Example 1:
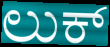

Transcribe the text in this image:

ಲುಕ್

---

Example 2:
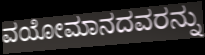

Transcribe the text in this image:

ವಯೋಮಾನದವರನ್ನು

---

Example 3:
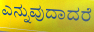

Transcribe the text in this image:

ಎನ್ನುವುದಾದರೆ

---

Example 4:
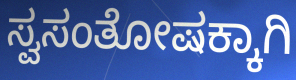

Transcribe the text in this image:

ಸ್ವಸಂತೋಷಕ್ಕಾಗಿ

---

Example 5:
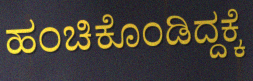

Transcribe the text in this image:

ಹಂಚಿಕೊಂಡಿದ್ದಕ್ಕೆ